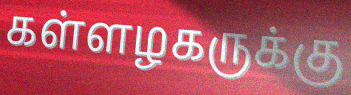
கள்ளழகருக்கு